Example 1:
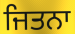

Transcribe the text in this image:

ਜਿਤਨਾ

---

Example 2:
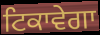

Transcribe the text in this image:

ਟਿਕਾਵੇਗਾ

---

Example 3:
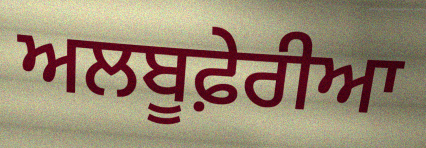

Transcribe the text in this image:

ਅਲਬੂਫ਼ੇਰੀਆ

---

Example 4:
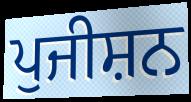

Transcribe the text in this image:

ਪੁਜੀਸ਼ਨ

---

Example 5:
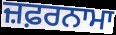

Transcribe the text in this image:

ਜ਼ਫ਼ਰਨਾਮਾ